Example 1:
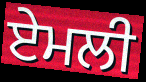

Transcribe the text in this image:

ਏਮਲੀ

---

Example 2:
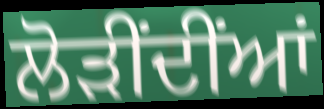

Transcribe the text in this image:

ਲੋੜੀਂਦੀਂਆਂ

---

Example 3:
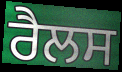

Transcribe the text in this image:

ਰੈਲਸ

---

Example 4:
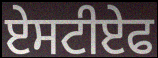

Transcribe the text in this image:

ਏਸਟੀਏਫ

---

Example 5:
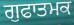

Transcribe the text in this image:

ਗੁਫਾਤਮਕ